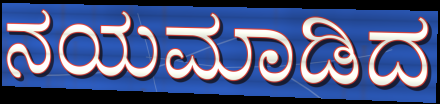
ನಯಮಾಡಿದ